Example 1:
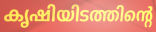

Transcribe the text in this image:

കൃഷിയിടത്തിന്റെ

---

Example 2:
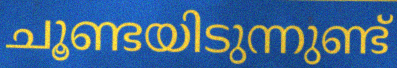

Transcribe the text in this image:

ചൂണ്ടയിടുന്നുണ്ട്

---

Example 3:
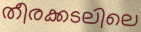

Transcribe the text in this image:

തീരക്കടലിലെ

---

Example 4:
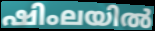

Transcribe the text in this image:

ഷിംലയിൽ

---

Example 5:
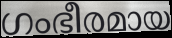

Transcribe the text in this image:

ഗംഭീരമായ